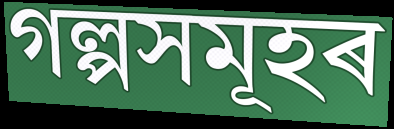
গল্পসমূহৰ